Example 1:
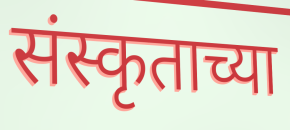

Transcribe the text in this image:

संस्कृताच्या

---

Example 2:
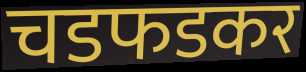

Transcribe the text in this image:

चडफडकर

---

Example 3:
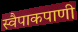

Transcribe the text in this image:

स्वैपाकपाणी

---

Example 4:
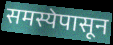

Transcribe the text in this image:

समस्येपासून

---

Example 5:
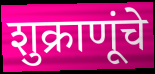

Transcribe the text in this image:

शुक्राणूंचे